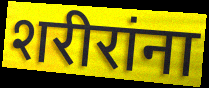
शरीरांना